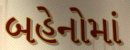
બહેનોમાં